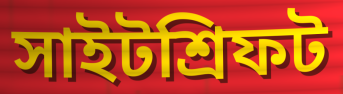
সাইটশ্রিফট